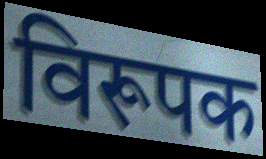
विरूपक